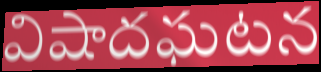
విషాదఘటన